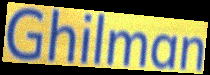
Ghilman